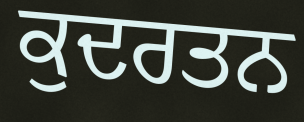
ਕੁਦਰਤਨ